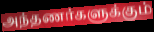
அந்தணர்களுக்கும்